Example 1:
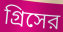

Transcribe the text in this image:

গ্রিসের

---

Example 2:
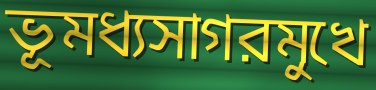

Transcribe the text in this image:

ভূমধ্যসাগরমুখে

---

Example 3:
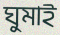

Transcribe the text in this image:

ঘুমাই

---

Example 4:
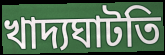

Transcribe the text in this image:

খাদ্যঘাটতি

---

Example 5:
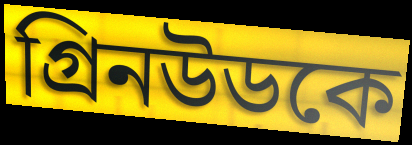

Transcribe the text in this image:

গ্রিনউডকে